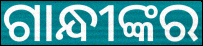
ଗାନ୍ଧୀଙ୍କର